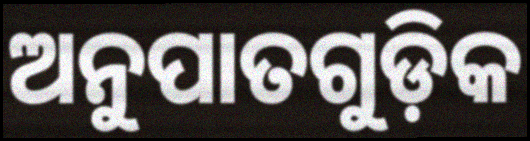
ଅନୁପାତଗୁଡ଼ିକ